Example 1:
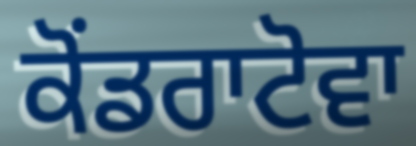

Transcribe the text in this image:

ਕੋਂਡਰਾਟੋਵਾ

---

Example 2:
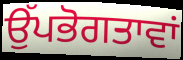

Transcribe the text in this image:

ਉੱਪਭੋਗਤਾਵਾਂ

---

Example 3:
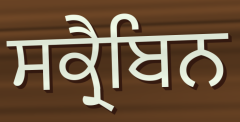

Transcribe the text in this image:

ਸਕ੍ਰੈਬਿਨ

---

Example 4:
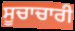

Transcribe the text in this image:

ਸੂਚਾਚਾਰੀ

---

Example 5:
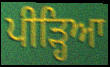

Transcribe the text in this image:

ਪੀੜ੍ਹਿਆ